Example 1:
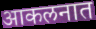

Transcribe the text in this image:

आकलनात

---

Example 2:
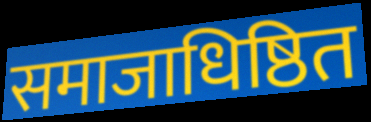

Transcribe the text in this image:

समाजाधिष्ठित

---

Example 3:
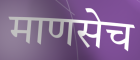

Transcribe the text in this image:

माणसेच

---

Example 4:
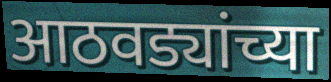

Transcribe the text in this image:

आठवड्यांच्या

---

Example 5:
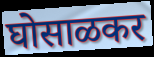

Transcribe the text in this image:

घोसाळकर